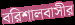
বরিশালবাসীর